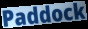
Paddock